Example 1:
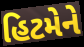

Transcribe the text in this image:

હિટમેને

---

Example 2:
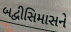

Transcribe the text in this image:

બદ્વીસિમાસને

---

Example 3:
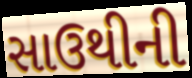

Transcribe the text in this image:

સાઉથીની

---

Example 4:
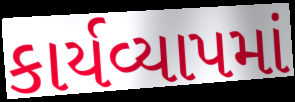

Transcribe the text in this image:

કાર્યવ્યાપમાં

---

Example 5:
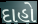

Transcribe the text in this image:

દાહો